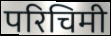
परिचिमी